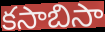
కసాబిసా